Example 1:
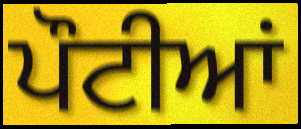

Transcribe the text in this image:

ਪੌਟੀਆਂ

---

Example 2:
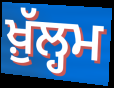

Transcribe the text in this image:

ਖ਼ੁੱਲ੍ਹਮ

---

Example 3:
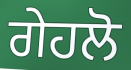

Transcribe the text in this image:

ਗੇਹਲੋ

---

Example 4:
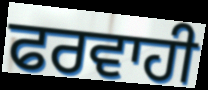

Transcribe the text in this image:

ਫਰਵਾਹੀ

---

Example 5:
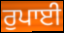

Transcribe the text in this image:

ਰੁਪਾਈ